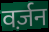
वर्ज़न